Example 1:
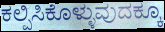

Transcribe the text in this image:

ಕಲ್ಪಿಸಿಕೊಳ್ಳುವುದಕ್ಕೂ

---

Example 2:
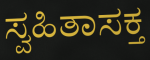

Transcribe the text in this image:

ಸ್ವಹಿತಾಸಕ್ತ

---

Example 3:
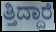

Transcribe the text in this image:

ತ್ತಿದ್ದಾರೆ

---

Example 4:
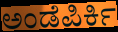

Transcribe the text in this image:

ಅಂಡೆಪಿರ್ಕಿ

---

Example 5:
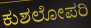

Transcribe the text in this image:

ಕುಶಲೋಪರಿ